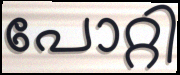
പോറ്റി